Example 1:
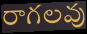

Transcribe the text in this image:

రాగలవు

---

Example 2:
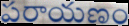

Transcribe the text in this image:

పరాయణం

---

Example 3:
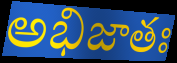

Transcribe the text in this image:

అభిజాతః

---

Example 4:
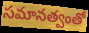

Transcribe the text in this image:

సమానత్వంతో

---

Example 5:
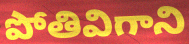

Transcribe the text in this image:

పోతివిగాని